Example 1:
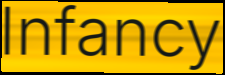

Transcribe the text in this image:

Infancy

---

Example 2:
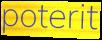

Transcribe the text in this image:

poterit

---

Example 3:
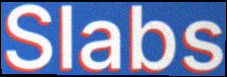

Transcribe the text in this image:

Slabs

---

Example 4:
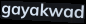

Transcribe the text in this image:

gayakwad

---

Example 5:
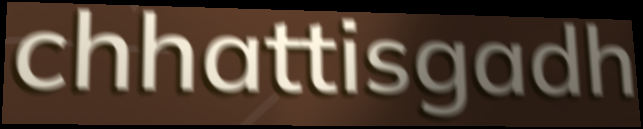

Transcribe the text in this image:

chhattisgadh